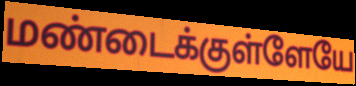
மண்டைக்குள்ளேயே